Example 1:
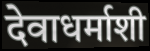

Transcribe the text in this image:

देवाधर्माशी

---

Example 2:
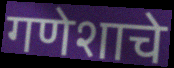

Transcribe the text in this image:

गणेशाचे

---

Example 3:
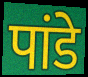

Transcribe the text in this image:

पांडे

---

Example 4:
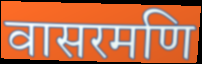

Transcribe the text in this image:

वासरमणि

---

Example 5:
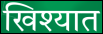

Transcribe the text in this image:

खिश्यात